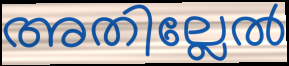
അതില്ലേൽ